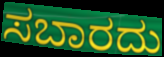
ಸಬಾರದು